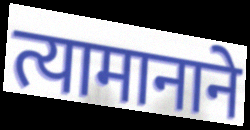
त्यामानाने